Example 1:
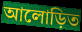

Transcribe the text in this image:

আলোড়িত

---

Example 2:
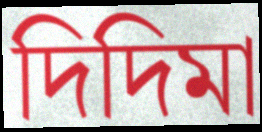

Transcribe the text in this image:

দিদিমা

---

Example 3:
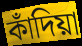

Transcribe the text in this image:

কাঁদিয়া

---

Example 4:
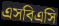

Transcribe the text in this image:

এসবিএসি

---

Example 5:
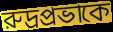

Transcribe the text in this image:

রুদ্রপ্রভাকে